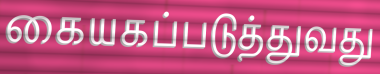
கையகப்படுத்துவது